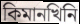
কিমানখিনি